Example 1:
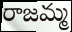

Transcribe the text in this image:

రాజమ్మ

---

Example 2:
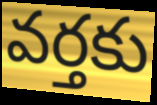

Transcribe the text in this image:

వర్తకు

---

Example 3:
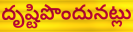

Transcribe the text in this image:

దృష్టిపొందునట్లు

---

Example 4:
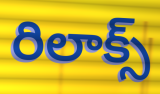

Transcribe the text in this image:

రిలాక్స్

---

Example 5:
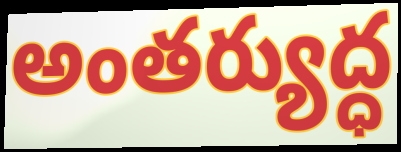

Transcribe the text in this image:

అంతర్యుద్ధ